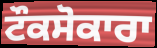
ਟੌਕਸੋਕਾਰਾ